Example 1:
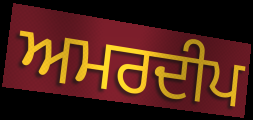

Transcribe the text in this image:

ਅਮਰਦੀਪ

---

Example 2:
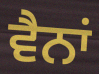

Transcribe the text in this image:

ਵੈਨਾਂ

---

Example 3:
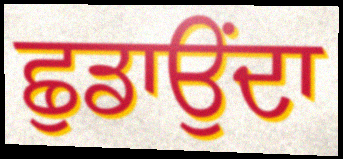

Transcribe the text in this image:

ਛੁਡਾਉਂਦਾ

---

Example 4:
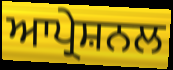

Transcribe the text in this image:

ਆਪ੍ਰੇਸ਼ਨਲ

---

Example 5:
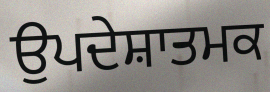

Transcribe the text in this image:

ਉਪਦੇਸ਼ਾਤਮਕ